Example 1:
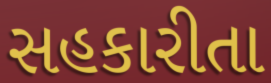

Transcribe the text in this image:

સહકારીતા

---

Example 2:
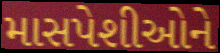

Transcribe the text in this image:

માસપેશીઓને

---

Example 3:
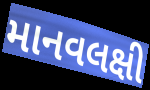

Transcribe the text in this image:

માનવલક્ષી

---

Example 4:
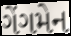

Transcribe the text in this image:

ગેંગમેન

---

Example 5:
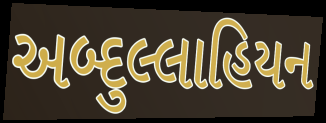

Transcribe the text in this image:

અબ્દુલ્લાહિયન